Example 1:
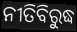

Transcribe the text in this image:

ନୀତିବିରୁଦ୍ଧ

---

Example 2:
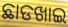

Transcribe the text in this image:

ଛାଡଖାଇ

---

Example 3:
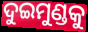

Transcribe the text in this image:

ଦୁଇମୁଣ୍ଡକୁ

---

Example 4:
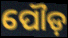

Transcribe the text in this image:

ପୌଡ଼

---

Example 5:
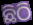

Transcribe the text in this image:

ଛିଠି